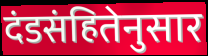
दंडसंहितेनुसार